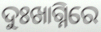
ଦୁଃଖାଗ୍ନିରେ